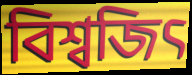
বিশ্বজিৎ